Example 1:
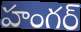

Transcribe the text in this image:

హంగర్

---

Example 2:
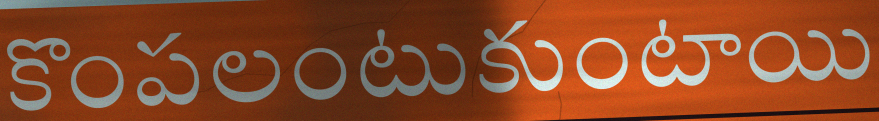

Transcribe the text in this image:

కొంపలంటుకుంటాయి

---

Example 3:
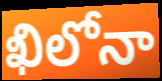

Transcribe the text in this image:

ఖిలోనా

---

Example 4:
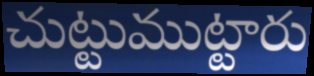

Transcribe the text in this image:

చుట్టుముట్టారు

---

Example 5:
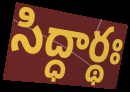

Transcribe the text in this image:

సిద్ధార్థః